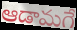
ఆడామగే